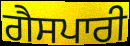
ਗੈਸਪਾਰੀ